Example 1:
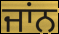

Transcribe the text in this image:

ਜਾਂਨ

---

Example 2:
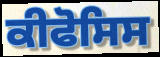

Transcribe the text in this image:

ਕੀਫੋਸਿਸ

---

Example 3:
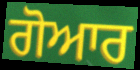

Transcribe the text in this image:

ਗੋਆਰ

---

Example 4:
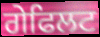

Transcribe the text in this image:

ਗੇਫਿਲਟ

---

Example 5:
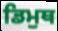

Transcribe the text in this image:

ਡਿਮੁਥ